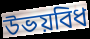
উভয়বিধ